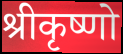
श्रीकृष्णो